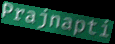
Prajnapti